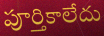
పూర్తికాలేదు